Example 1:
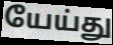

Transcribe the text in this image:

யேய்து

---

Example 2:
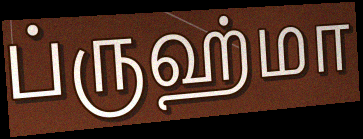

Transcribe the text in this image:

ப்ருஹ்மா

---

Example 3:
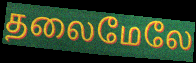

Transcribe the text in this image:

தலைமேலே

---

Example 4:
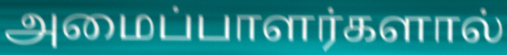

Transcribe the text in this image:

அமைப்பாளர்களால்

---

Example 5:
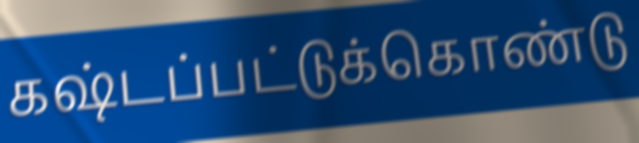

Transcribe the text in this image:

கஷ்டப்பட்டுக்கொண்டு